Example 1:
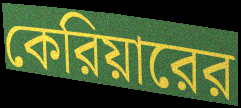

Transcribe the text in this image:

কেরিয়ারের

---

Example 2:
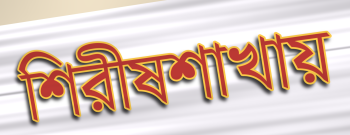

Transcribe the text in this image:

শিরীষশাখায়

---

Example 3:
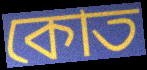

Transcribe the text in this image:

কোত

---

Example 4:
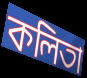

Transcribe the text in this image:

কলিতা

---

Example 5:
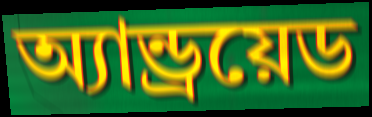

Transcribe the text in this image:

অ্যান্ড্রয়েড